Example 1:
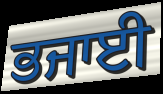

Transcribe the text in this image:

ਭਜਾਈ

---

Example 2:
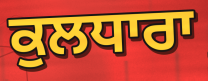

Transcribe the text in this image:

ਕੁਲਧਾਰਾ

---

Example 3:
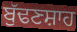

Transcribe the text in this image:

ਬੁੱਢਣਸ਼ਾਹ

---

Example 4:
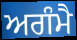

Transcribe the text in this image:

ਅਗੰਮੈ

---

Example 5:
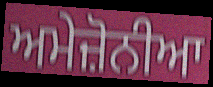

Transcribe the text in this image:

ਅਮੇਜ਼ੋਨੀਆ